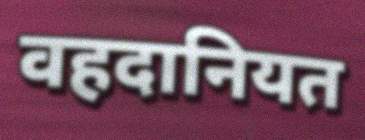
वहदानियत